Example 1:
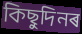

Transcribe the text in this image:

কিছুদিনৰ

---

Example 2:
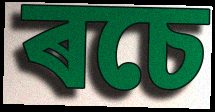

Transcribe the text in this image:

ৰচে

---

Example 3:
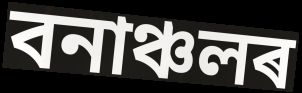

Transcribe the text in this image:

বনাঞ্চলৰ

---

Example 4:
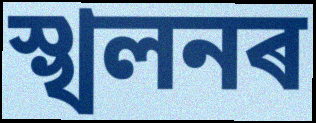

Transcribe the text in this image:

স্খলনৰ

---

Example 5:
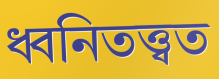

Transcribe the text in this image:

ধ্বনিতত্ত্বত